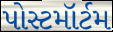
પોસ્ટમૉર્ટમ